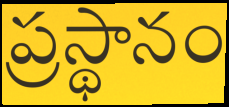
ప్రస్థానం